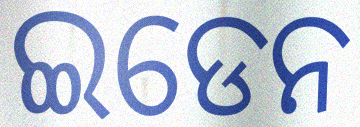
ଇଡେନ